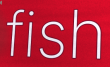
fish